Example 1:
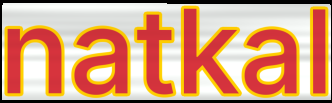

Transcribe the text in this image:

natkal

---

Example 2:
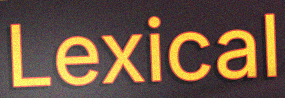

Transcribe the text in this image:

Lexical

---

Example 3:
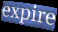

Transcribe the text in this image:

expire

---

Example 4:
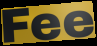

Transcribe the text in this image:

Fee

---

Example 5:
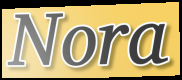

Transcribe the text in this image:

Nora